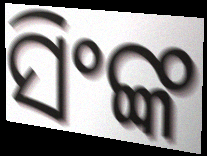
ସିଂଙ୍କ